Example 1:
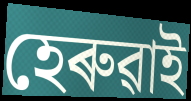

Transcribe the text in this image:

হেৰুৱাই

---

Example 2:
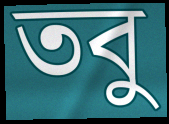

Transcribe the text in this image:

তবু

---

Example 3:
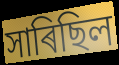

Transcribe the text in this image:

সাৰিছিল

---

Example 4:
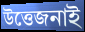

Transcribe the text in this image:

উত্তেজনাই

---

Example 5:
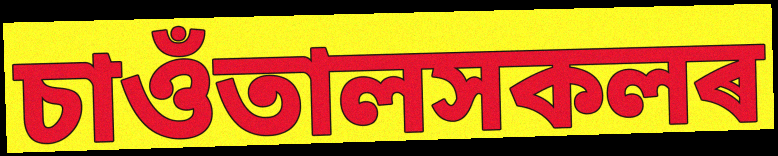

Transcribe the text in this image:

চাওঁতালসকলৰ